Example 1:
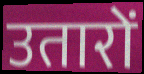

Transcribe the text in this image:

उतारों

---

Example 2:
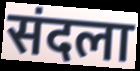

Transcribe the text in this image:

संदला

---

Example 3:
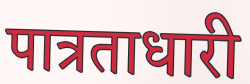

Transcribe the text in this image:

पात्रताधारी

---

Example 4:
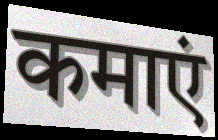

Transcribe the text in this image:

कमाएं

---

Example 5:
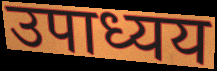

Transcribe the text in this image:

उपाध्यय